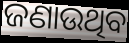
ଜଣାଉଥିବ